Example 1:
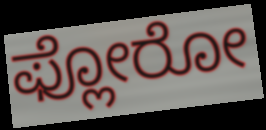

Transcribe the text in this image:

ಫ್ಲೋರೋ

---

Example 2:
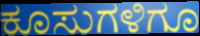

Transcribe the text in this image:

ಕೂಸುಗಳಿಗೂ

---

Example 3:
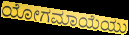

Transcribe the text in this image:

ಯೋಗಮಾಯೆಯು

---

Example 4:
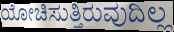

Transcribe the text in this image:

ಯೋಚಿಸುತ್ತಿರುವುದಿಲ್ಲ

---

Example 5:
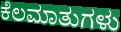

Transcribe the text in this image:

ಕೆಲಮಾತುಗಳು